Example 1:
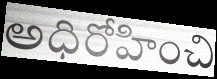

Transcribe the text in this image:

అధిరోహించి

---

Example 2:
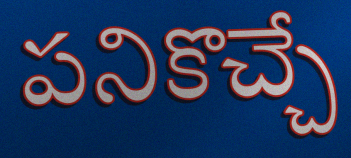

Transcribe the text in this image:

పనికొచ్చే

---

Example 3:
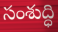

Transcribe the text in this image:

సంశుద్ధి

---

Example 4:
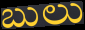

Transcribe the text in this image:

బులు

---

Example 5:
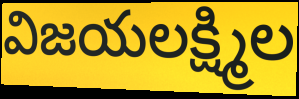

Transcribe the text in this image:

విజయలక్ష్మిల